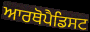
ਆਰਥੋਪੈਡਿਸਟ